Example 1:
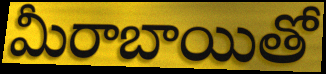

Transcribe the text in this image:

మీరాబాయితో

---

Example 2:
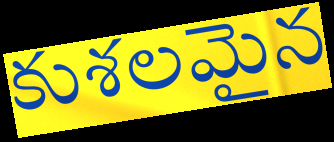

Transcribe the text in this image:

కుశలమైన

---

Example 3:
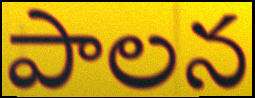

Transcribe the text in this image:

పాలన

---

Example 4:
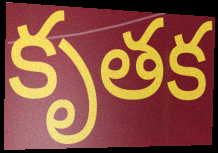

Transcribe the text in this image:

కృతక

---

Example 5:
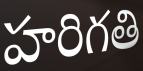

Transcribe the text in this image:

హరిగతి